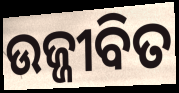
ଉଜ୍ଜୀବିତ